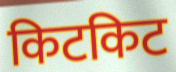
किटकिट